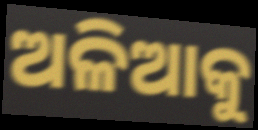
ଅଳିଆକୁ